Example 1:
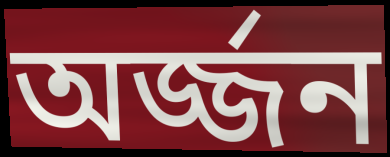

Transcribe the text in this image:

অর্জ্জন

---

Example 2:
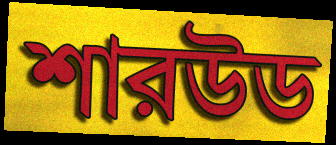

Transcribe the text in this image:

শারউড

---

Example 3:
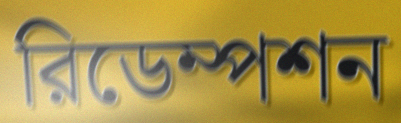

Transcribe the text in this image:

রিডেম্পশন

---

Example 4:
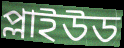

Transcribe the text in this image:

প্লাইউড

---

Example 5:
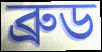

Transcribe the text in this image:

ব্রুড